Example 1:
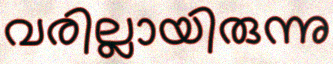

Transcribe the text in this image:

വരില്ലായിരുന്നു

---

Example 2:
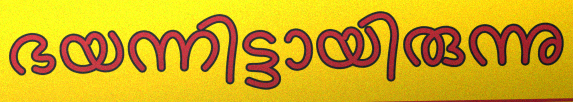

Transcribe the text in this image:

ഭയന്നിട്ടായിരുന്നു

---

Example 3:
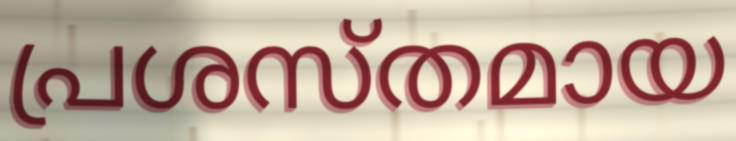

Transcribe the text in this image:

പ്രശസ്തമായ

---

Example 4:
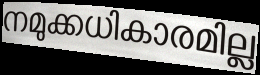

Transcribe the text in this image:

നമുക്കധികാരമില്ല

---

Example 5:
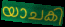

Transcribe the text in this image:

യാചകി